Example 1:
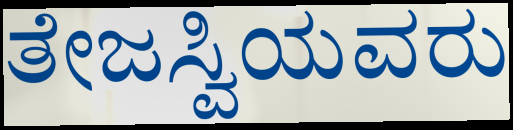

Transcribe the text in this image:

ತೇಜಸ್ವಿಯವರು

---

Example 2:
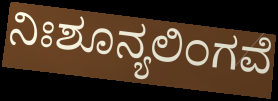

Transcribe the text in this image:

ನಿಃಶೂನ್ಯಲಿಂಗವೆ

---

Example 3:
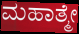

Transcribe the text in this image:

ಮಹಾತ್ಮೇ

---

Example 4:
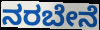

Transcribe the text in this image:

ನರಬೇನೆ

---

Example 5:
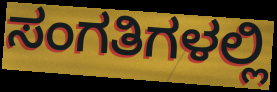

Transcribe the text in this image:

ಸಂಗತಿಗಳಲ್ಲಿ